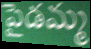
పైడమ్మ